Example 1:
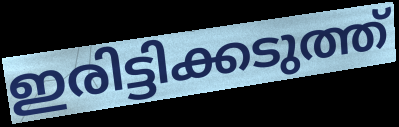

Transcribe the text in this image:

ഇരിട്ടിക്കടുത്ത്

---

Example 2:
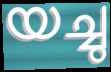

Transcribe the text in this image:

യച്ചു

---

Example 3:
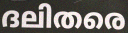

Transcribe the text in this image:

ദലിതരെ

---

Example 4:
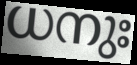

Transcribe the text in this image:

ധനുഃ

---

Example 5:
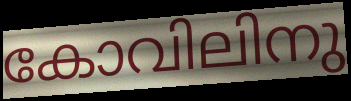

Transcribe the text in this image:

കോവിലിനു